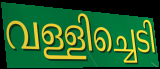
വള്ളിച്ചെടി